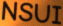
NSUI